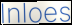
Inloes